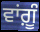
ਵਾਂਗ਼ੂੰ